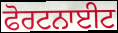
ਫੋਰਟਨਾਈਟ